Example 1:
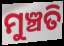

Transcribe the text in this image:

ମୁଞ୍ଚତି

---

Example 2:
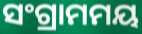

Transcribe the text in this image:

ସଂଗ୍ରାମମୟ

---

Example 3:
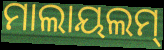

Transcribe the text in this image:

ମାଲାୟଲମ୍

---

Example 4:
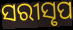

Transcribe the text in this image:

ସରୀସୃପ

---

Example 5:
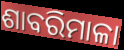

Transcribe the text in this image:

ଶାବରିମାଳା